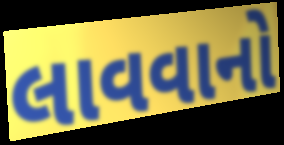
લાવવાનો